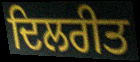
ਦਿਲਰੀਤ